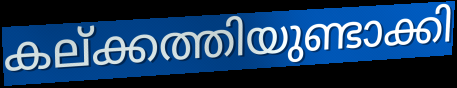
കല്ക്കത്തിയുണ്ടാക്കി